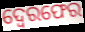
ଦ୍ବେରଫେର